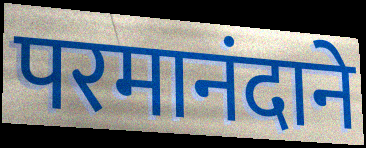
परमानंदाने